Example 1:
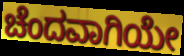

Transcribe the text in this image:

ಚೆಂದವಾಗಿಯೇ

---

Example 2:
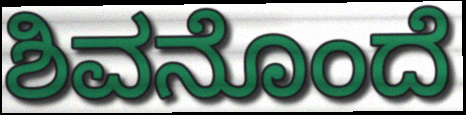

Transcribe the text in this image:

ಶಿವನೊಂದೆ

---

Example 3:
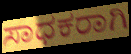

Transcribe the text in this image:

ಸಾಧಕರಾಗಿ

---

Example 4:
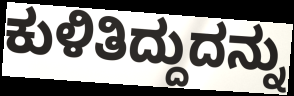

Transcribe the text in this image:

ಕುಳಿತಿದ್ದುದನ್ನು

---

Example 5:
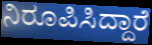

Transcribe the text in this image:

ನಿರೂಪಿಸಿದ್ದಾರೆ